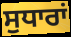
ਸੁਧਾਰਾਂ